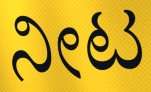
ನೀಟ